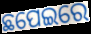
ଛପେଇରେ